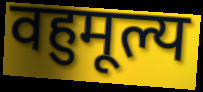
वहुमूल्य